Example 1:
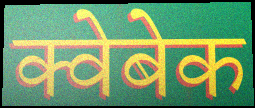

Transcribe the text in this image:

क्वेबेक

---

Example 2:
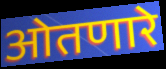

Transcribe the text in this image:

ओतणारे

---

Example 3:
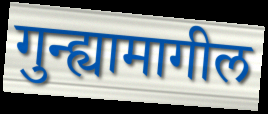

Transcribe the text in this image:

गुन्ह्यामागील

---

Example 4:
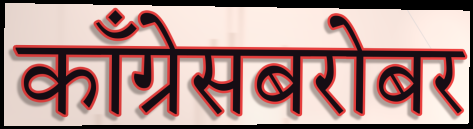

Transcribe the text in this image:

काँग्रेसबरोबर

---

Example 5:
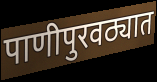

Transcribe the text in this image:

पाणीपुरवठ्यात